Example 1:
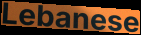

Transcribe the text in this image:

Lebanese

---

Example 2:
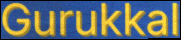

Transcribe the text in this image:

Gurukkal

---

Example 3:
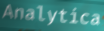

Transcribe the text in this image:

Analytica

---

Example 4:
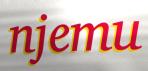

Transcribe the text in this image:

njemu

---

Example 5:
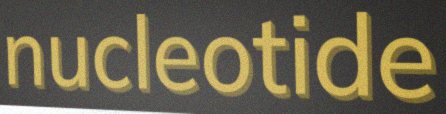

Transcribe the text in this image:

nucleotide